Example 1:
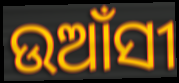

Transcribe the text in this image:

ଉଆଁସୀ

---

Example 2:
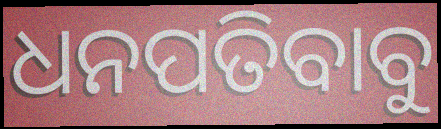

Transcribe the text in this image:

ଧନପତିବାବୁ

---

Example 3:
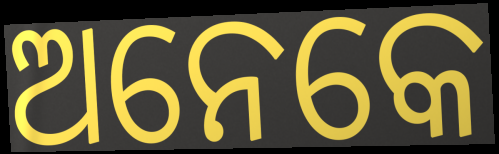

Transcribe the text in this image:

ଅନେକେ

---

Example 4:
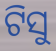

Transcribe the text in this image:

ଟିସୁ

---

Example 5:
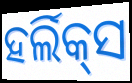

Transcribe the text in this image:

ହର୍ଲିକ୍‌ସ